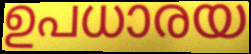
ഉപധാരയ